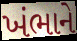
ખંભાને